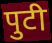
पुटी